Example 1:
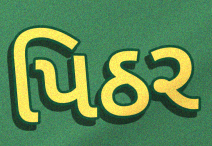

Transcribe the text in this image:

પિઠર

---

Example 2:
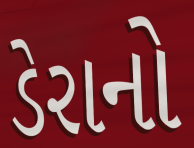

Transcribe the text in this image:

ડેરાનો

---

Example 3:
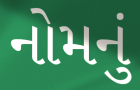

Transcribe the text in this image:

નોમનું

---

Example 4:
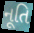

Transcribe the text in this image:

નૂતિ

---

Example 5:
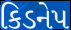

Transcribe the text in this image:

કિડનેપ